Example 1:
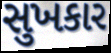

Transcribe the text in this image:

સુખકાર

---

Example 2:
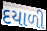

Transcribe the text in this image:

દયાળી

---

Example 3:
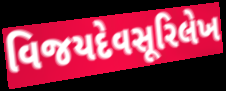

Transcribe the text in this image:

વિજયદેવસૂરિલેખ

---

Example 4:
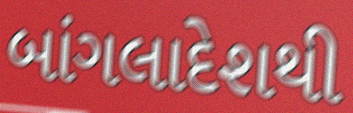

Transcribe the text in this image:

બાંગલાદેશથી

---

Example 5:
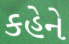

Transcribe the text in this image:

કહેને